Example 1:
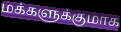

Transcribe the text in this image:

மக்களுக்குமாக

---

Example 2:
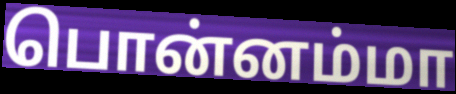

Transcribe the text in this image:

பொன்னம்மா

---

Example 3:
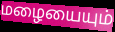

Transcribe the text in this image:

மழையையும்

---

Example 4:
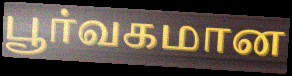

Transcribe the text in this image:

பூர்வகமான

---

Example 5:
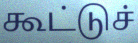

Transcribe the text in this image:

கூட்டுச்